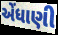
એંધાણી